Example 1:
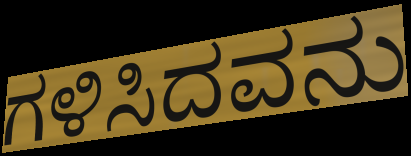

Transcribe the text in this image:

ಗಳಿಸಿದವನು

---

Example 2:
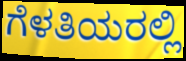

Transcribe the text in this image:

ಗೆಳತಿಯರಲ್ಲಿ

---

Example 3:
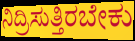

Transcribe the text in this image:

ನಿದ್ರಿಸುತ್ತಿರಬೇಕು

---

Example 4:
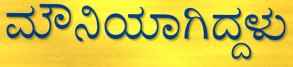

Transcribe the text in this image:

ಮೌನಿಯಾಗಿದ್ದಳು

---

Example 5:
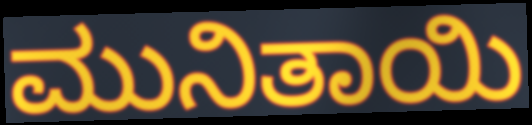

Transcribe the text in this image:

ಮುನಿತಾಯಿ